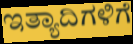
ಇತ್ಯಾದಿಗಳಿಗೆ